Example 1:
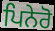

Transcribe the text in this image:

ਪਿਨੇਰੋ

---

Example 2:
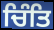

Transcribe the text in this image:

ਚਿੰਤਿ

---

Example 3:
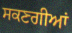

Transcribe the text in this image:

ਸਕਣਗੀਆਂ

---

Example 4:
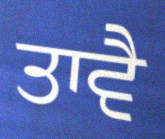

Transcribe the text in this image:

ਤਾਵੈ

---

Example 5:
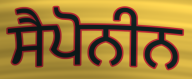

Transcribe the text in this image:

ਸੈਪੋਨੀਨ